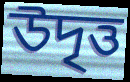
উদৃত্ত